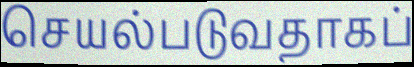
செயல்படுவதாகப்